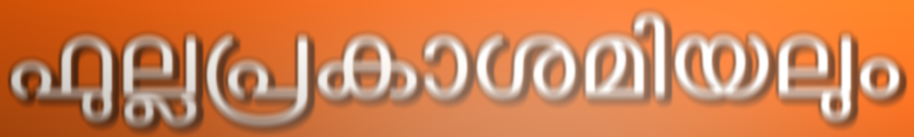
ഫുല്ലപ്രകാശമിയലും